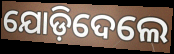
ଯୋଡ଼ିଦେଲେ